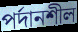
পর্দানশীল